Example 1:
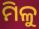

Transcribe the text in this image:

ମିଳୁ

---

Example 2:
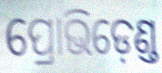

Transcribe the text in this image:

ପ୍ରୋଭିଡ଼େଣ୍ଡ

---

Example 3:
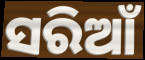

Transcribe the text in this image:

ସରିଆଁ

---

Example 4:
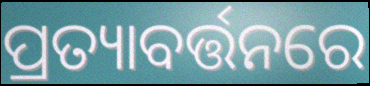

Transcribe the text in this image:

ପ୍ରତ୍ୟାବର୍ତ୍ତନରେ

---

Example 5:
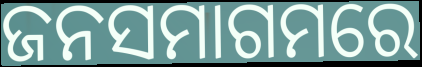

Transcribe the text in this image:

ଜନସମାଗମରେ